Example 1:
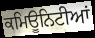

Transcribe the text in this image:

ਕਮਿਊਨਿਟੀਆਂ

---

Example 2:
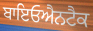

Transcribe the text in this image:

ਬਾਇਓਐਨਟੈਕ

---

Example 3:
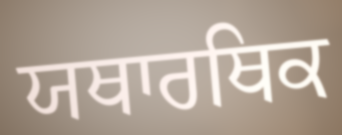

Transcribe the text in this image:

ਯਥਾਰਥਿਕ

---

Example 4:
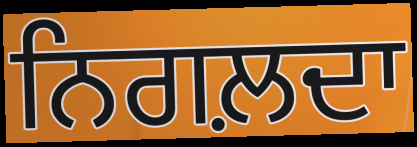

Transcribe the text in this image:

ਨਿਗਲ਼ਦਾ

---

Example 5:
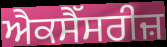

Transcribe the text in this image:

ਐਕਸੈੱਸਰੀਜ਼